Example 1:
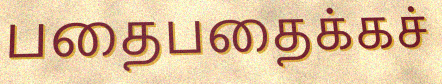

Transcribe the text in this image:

பதைபதைக்கச்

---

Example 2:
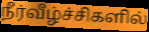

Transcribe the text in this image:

நீர்வீழ்ச்சிகளில்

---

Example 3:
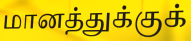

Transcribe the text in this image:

மானத்துக்குக்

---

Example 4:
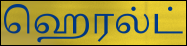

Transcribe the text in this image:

ஹெரல்ட்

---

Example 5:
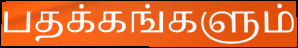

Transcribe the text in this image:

பதக்கங்களும்